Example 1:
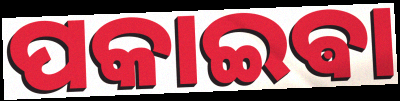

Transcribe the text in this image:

ପକାଇଵା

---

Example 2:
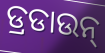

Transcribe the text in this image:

ଡ୍ରଡାଉନ୍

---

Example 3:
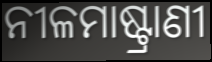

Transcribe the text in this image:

ନୀଳମାଷ୍ଟ୍ରାଣୀ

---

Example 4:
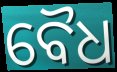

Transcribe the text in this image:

ବୈଧ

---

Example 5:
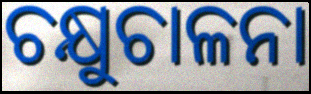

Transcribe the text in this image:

ଚକ୍ଷୁଚାଳନା